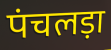
पंचलड़ा